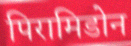
पिरामिडोन